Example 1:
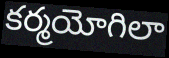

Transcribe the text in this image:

కర్మయోగిలా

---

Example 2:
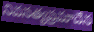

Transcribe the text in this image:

నివసత్యప్రమాదేన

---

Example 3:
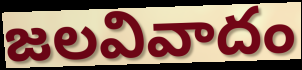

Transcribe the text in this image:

జలవివాదం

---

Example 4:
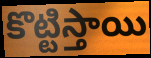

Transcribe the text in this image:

కొట్టిస్తాయి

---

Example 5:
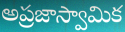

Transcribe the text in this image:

అప్రజాస్వామిక